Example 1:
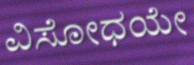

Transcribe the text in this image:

ವಿಸೋಧಯೇ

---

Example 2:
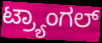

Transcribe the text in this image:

ಟ್ರ್ಯಾಂಗಲ್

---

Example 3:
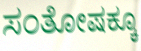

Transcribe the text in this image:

ಸಂತೋಷಕ್ಕೂ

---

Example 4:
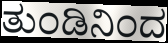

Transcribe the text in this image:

ತುಂಡಿನಿಂದ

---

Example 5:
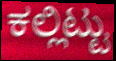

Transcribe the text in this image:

ಕಲ್ಲಿಟ್ಟು